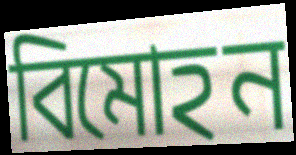
বিমোহন